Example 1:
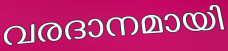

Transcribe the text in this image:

വരദാനമായി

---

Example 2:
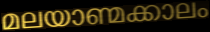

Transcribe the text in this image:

മലയാണ്മക്കാലം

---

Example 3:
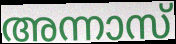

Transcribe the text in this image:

അന്നാസ്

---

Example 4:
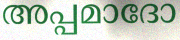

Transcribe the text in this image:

അപ്പമാദോ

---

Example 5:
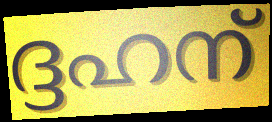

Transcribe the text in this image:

ദ്ദഹന്